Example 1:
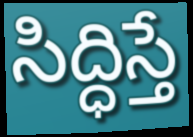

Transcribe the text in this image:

సిద్ధిస్తే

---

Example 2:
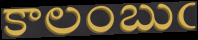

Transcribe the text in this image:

కాలంబుఁ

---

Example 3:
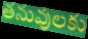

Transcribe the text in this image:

తనువులకు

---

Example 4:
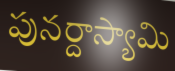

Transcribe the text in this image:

పునర్దాస్యామి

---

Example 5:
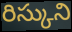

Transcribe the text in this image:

రిస్కుని